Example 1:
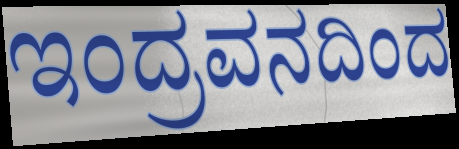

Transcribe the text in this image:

ಇಂದ್ರವನದಿಂದ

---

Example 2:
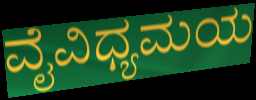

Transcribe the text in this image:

ವೈವಿಧ್ಯಮಯ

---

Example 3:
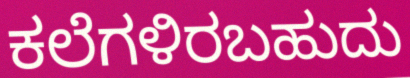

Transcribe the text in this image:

ಕಲೆಗಳಿರಬಹುದು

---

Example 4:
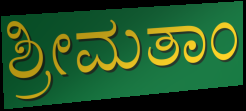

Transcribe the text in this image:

ಶ್ರೀಮತಾಂ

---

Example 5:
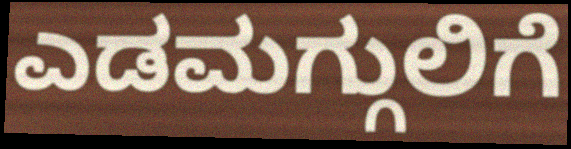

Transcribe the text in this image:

ಎಡಮಗ್ಗುಲಿಗೆ